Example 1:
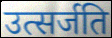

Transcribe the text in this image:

उत्सर्जति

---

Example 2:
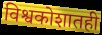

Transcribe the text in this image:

विश्वकोशातही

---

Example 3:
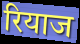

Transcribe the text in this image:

रियाज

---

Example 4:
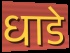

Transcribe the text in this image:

धाडे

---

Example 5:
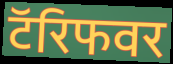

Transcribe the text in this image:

टॅरिफवर